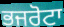
ਭਜਰੋਟਾ